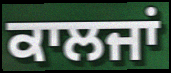
ਕਾਲਜਾਂ